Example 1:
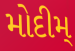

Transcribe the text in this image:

મોદીમ્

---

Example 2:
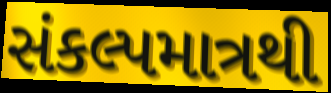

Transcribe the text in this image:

સંકલ્પમાત્રથી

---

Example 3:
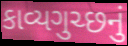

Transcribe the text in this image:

કાવ્યગુચ્છનું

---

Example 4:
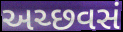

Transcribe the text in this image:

અચ્છવસં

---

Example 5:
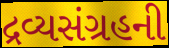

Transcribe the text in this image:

દ્રવ્યસંગ્રહની